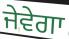
ਜੇਵੇਗਾ